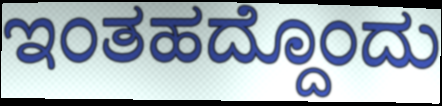
ಇಂತಹದ್ದೊಂದು